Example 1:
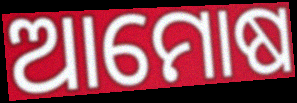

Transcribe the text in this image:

ଆମୋଷ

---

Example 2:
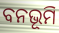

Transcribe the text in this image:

ବନଭୂମି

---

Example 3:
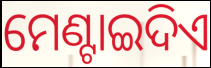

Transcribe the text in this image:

ମେଣ୍ଟାଇଦିଏ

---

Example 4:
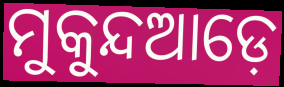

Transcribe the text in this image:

ମୁକୁନ୍ଦଆଡ଼େ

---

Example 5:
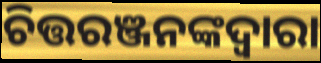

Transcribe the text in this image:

ଚିତ୍ତରଞ୍ଜନଙ୍କଦ୍ଵାରା